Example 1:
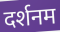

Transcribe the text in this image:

दर्शनम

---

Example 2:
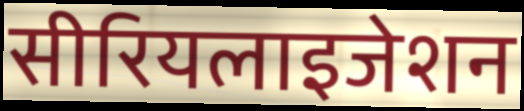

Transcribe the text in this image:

सीरियलाइजेशन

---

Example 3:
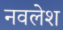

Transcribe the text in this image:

नवलेश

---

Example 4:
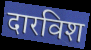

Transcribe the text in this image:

दारविश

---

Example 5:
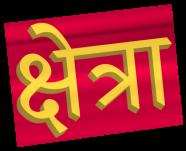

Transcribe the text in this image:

क्षेत्रा